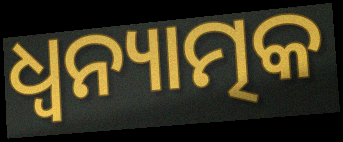
ଧ୍ୱନ୍ୟାତ୍ମକ